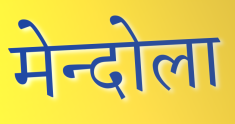
मेन्दोला